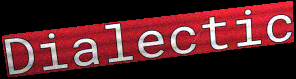
Dialectic